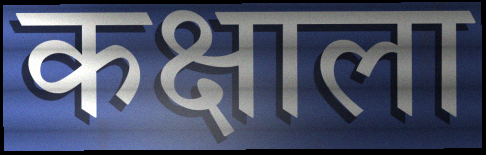
कक्षाला